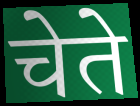
चेते